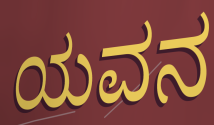
ಯವನ